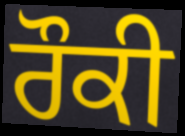
ਰੌਕੀ